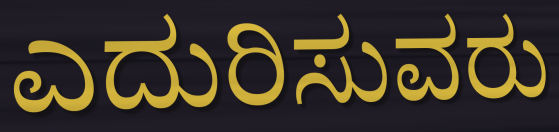
ಎದುರಿಸುವರು